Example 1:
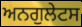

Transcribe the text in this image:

ਅਨਗੁਲੇਟਸ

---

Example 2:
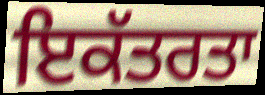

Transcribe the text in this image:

ਇਕੱਤਰਤਾ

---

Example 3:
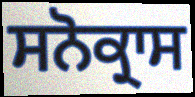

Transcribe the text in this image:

ਸਨੋਕ੍ਰਾਸ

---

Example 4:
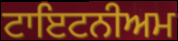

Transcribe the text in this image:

ਟਾਇਟਨੀਅਮ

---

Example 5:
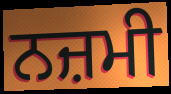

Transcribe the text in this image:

ਨਜ਼ਮੀ